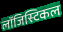
लॉजिस्टिकल